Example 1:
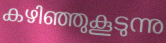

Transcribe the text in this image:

കഴിഞ്ഞുകൂടുന്നു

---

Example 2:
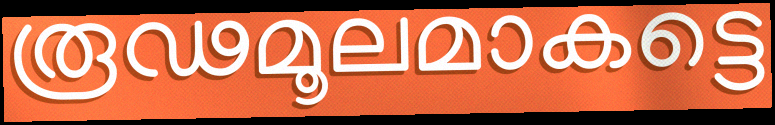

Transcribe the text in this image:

രൂഢമൂലമാകട്ടെ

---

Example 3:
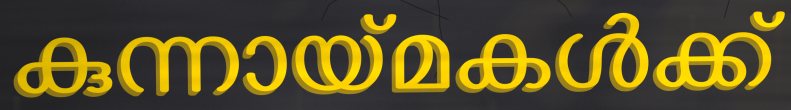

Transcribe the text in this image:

കുന്നായ്മകൾക്ക്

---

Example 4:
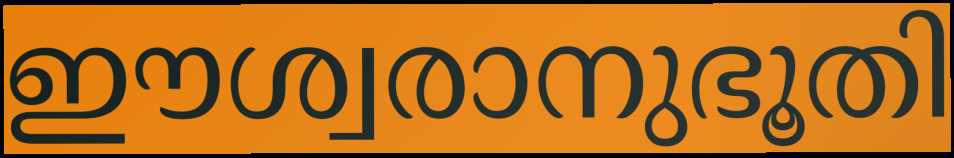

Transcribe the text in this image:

ഈശ്വരാനുഭൂതി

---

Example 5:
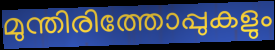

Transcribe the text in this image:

മുന്തിരിത്തോപ്പുകളും